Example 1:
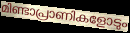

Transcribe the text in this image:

മിണ്ടാപ്രാണികളോടും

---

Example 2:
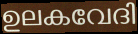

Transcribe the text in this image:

ഉലകവേദി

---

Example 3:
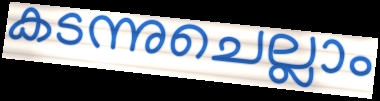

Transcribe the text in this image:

കടന്നുചെല്ലാം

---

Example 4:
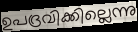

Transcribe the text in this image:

ഉപദ്രവിക്കില്ലെന്നു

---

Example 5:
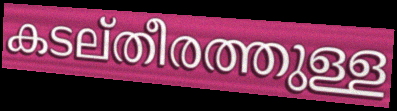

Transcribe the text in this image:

കടല്തീരത്തുള്ള